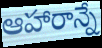
ఆహారాన్నే